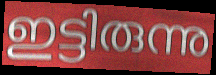
ഇട്ടിരുന്നു